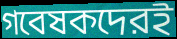
গবেষকদেরই